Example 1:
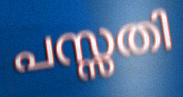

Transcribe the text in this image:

പസ്സതി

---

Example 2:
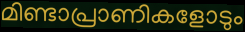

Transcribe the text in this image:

മിണ്ടാപ്രാണികളോടും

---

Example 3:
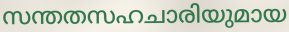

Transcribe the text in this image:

സന്തതസഹചാരിയുമായ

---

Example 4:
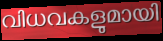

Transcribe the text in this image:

വിധവകളുമായി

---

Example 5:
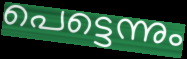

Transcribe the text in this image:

പെട്ടെന്നും